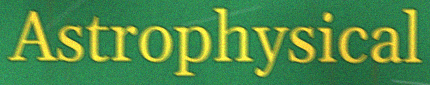
Astrophysical